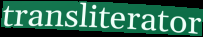
transliterator